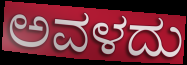
ಅವಳದು